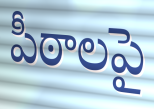
పీఠాలపై